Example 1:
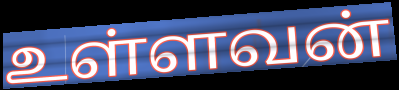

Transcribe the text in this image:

உள்ளவன்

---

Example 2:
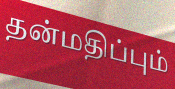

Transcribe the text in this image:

தன்மதிப்பும்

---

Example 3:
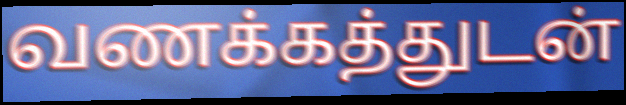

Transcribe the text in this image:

வணக்கத்துடன்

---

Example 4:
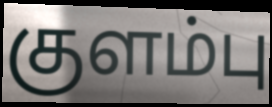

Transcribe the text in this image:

குளம்பு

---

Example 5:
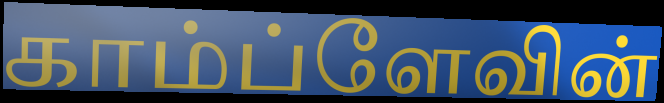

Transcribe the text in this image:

காம்ப்ளேவின்